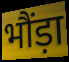
भौंड़ा